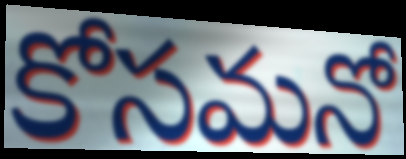
కోసమనో